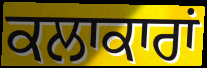
ਕਲਾਕਾਰਾਂ